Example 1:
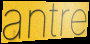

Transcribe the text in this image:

antre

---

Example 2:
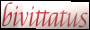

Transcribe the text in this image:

bivittatus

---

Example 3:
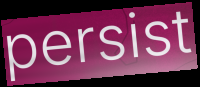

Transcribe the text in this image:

persist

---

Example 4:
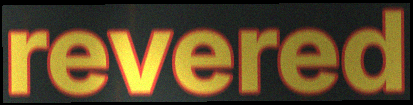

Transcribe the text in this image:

revered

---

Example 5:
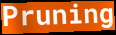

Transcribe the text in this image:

Pruning